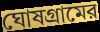
ঘোষগ্রামের